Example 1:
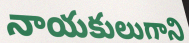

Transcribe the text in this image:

నాయకులుగాని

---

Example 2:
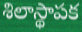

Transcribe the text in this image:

శిలాస్థాపక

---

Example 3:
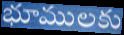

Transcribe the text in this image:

భూములకు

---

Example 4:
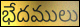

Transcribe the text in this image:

భేదములు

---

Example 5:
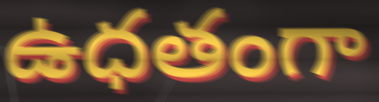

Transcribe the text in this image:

ఉధతంగా